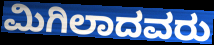
ಮಿಗಿಲಾದವರು